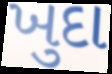
ખુદા